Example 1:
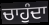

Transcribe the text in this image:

ਚਾਹੁੰਦਾ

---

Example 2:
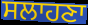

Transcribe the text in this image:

ਸਲਾਹਣਾ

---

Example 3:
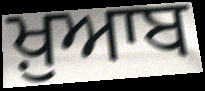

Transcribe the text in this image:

ਖ਼ੁਆਬ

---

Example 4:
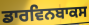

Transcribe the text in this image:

ਡਾਰਵਿਨਬਾਕਸ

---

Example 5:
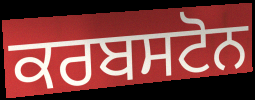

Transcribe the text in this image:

ਕਰਬਸਟੋਨ